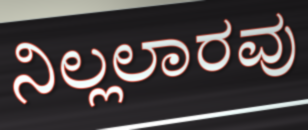
ನಿಲ್ಲಲಾರವು